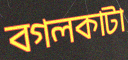
বগলকাটা